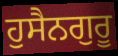
ਹੁਸੈਨਗੁਰੂ